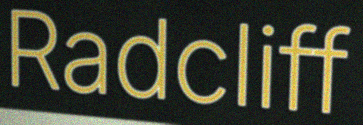
Radcliff